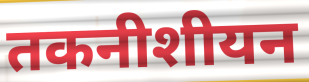
तकनीशीयन